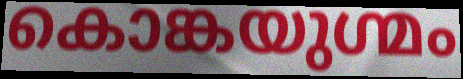
കൊങ്കയുഗ്മം